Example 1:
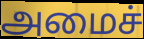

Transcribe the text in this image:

அமைச்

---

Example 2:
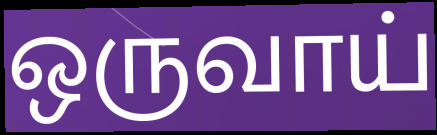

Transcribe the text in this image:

ஒருவாய்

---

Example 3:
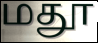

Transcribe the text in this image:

மதூ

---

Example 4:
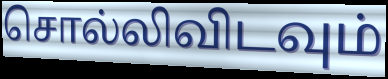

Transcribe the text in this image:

சொல்லிவிடவும்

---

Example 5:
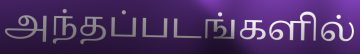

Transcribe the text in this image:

அந்தப்படங்களில்